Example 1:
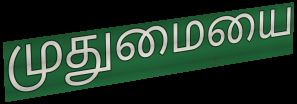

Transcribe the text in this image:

முதுமையை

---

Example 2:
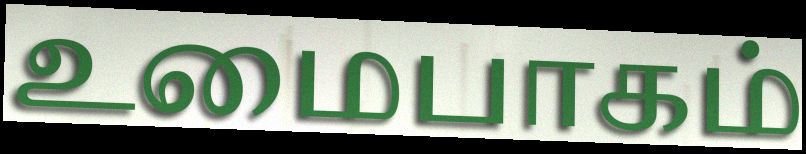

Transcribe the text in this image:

உமைபாகம்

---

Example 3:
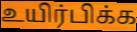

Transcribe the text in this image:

உயிர்பிக்க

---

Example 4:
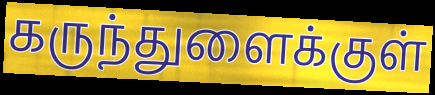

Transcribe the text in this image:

கருந்துளைக்குள்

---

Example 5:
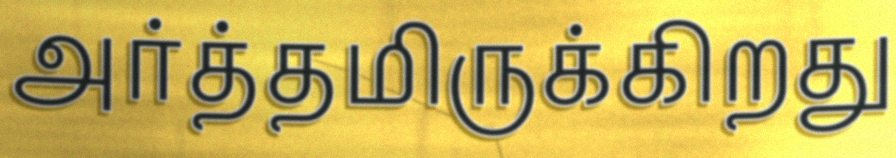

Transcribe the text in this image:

அர்த்தமிருக்கிறது